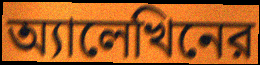
অ্যালেখিনের